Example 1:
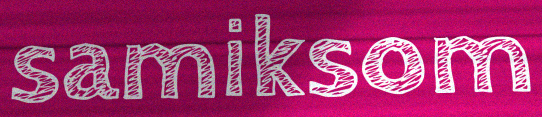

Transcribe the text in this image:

samiksom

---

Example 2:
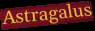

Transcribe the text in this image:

Astragalus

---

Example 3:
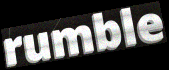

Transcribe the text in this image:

rumble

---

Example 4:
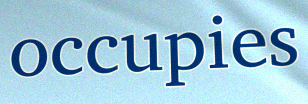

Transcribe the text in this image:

occupies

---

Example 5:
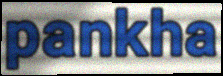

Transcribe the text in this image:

pankha